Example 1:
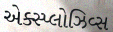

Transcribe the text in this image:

એક્સ્પ્લોઝિવ્સ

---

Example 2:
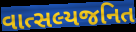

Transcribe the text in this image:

વાત્સલ્યજનિત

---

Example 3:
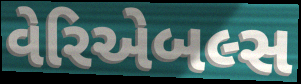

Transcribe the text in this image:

વેરિએબલ્સ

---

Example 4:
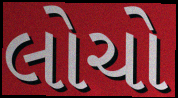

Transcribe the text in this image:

લોચો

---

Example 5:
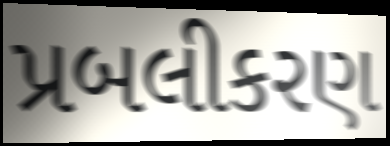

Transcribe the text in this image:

પ્રબલીકરણ